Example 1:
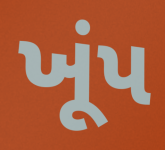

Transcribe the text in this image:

ખૂંપ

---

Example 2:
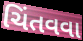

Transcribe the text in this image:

ચિંતવવા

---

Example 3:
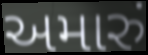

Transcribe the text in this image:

અમારું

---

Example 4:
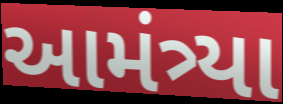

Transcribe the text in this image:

આમંત્ર્યા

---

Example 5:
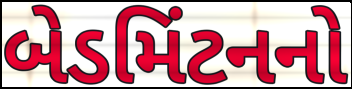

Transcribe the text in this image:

બેડમિંટનનો